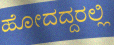
ಹೋದದ್ದರಲ್ಲಿ